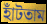
হাঁটতাম